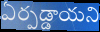
ఏర్పడ్డాయని